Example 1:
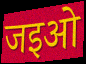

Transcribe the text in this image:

जइओ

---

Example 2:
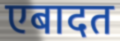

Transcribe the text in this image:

एबादत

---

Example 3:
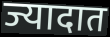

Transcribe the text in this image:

ज्यादात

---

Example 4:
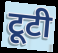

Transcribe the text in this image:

टूटी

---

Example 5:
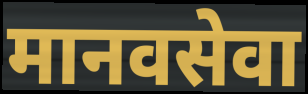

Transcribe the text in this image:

मानवसेवा